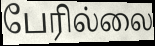
பேரில்லை